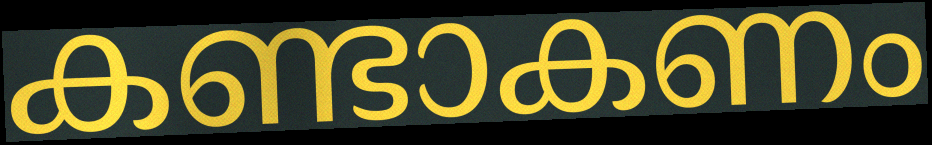
കണ്ടാകണം